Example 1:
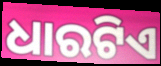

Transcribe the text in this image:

ଧାରଟିଏ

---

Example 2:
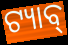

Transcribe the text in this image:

ଟ୍ୟାବ୍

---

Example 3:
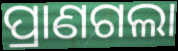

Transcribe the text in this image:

ପ୍ରାଣଗଲା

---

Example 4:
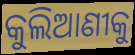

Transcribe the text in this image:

କୁଲିଆଣୀକୁ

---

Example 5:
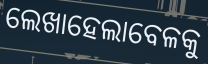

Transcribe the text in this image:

ଲେଖାହେଲାବେଳକୁ